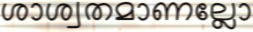
ശാശ്വതമാണല്ലോ